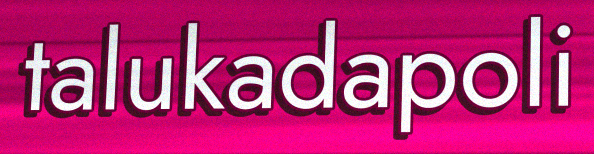
talukadapoli